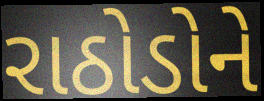
રાઠોડોને